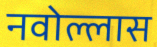
नवोल्लास